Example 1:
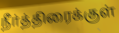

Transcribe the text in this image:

நீர்த்திரைக்குள்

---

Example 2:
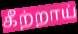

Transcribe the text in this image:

கீற்றாய்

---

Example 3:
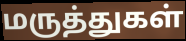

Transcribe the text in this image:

மருத்துகள்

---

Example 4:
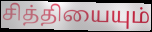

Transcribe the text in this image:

சித்தியையும்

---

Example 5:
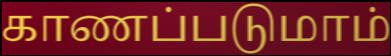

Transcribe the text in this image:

காணப்படுமாம்